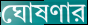
ঘোষণার